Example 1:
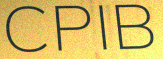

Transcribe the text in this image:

CPIB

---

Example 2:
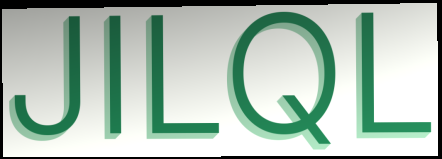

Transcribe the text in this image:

JILQL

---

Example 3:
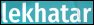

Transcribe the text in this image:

lekhatar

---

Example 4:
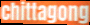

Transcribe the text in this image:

chittagong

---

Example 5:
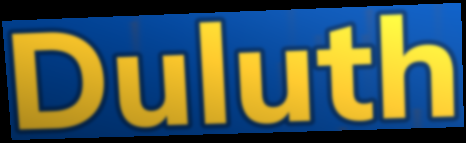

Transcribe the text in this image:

Duluth